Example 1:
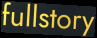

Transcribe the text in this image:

fullstory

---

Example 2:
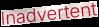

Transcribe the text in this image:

Inadvertent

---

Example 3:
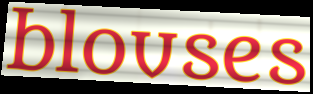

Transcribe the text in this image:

blouses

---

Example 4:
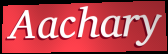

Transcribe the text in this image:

Aachary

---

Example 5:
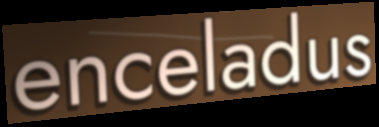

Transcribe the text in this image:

enceladus